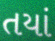
તયાં